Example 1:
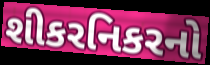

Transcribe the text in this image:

શીકરનિકરનો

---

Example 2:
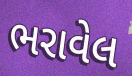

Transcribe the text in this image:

ભરાવેલ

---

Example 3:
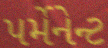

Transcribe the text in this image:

પર્મેનેન્ટ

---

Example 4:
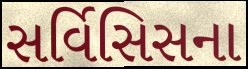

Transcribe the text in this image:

સર્વિસિસના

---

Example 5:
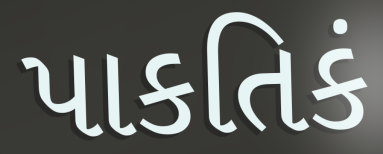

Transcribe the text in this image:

પાકતિકં